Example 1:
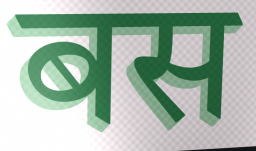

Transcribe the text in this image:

बस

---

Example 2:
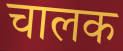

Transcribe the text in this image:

चालक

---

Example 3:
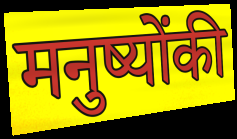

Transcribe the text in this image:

मनुष्योंकी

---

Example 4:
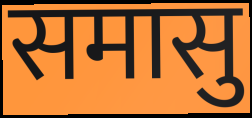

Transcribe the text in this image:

समासु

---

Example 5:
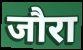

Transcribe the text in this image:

जौरा